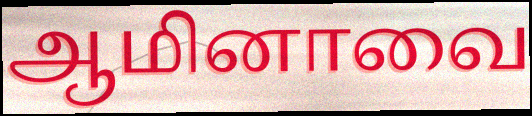
ஆமினாவை